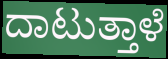
ದಾಟುತ್ತಾಳೆ